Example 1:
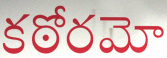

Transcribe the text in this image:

కఠోరమో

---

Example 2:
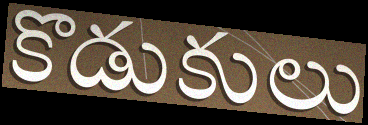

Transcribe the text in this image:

కొడుకులు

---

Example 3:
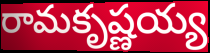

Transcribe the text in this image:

రామకృష్ణయ్య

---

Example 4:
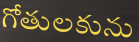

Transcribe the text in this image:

గోతులకును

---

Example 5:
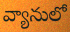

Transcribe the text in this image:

వ్యానులో